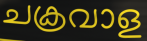
ചക്രവാള